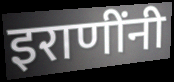
इराणींनी